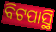
ବିଟପାସ୍ଥି